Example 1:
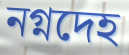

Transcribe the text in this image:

নগ্নদেহ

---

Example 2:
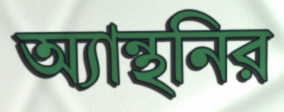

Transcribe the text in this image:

অ্যান্থনির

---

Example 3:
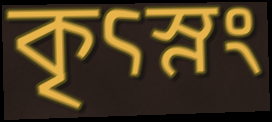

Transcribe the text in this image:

কৃৎস্নং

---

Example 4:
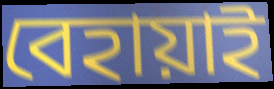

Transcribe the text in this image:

বেহায়াই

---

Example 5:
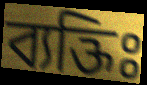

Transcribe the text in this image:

ব্যক্তিঃ